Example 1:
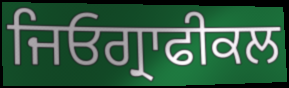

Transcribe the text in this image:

ਜਿਓਗ੍ਰਾਫੀਕਲ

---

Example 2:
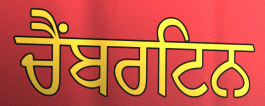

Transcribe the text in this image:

ਚੈਂਬਰਟਿਨ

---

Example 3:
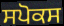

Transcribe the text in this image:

ਸਪੋਕਸ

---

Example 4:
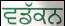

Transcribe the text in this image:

ਵਡੱਕਨ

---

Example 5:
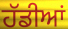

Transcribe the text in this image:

ਹੱਡੀਆਂ